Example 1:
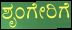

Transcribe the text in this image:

ಶೃಂಗೇರಿಗೆ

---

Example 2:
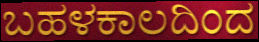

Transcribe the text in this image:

ಬಹಳಕಾಲದಿಂದ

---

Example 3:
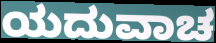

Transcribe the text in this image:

ಯದುವಾಚ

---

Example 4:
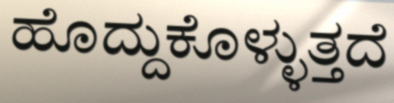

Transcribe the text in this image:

ಹೊದ್ದುಕೊಳ್ಳುತ್ತದೆ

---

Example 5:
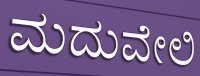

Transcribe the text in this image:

ಮದುವೇಲಿ